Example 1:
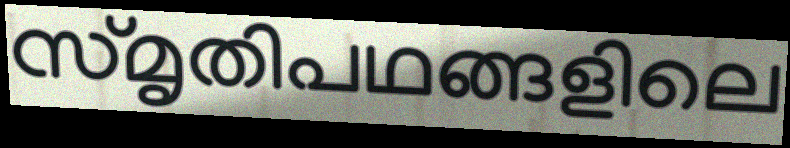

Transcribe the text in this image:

സ്മൃതിപഥങ്ങളിലെ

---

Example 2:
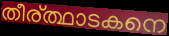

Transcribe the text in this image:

തീര്ത്ഥാടകനെ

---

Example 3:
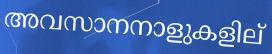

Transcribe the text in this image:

അവസാനനാളുകളില്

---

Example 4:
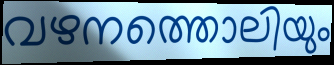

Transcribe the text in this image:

വഴനത്തൊലിയും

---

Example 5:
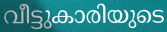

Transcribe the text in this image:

വീട്ടുകാരിയുടെ